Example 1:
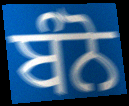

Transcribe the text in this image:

ਬੰਨੋ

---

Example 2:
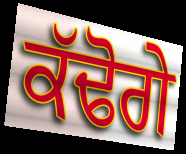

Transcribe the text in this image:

ਕੱਢੋਗੇ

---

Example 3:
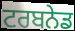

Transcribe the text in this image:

ਟਰਬਨੇਡ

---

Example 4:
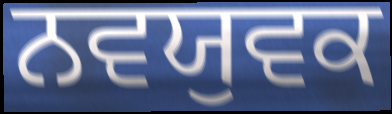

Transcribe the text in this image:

ਨਵਯੁਵਕ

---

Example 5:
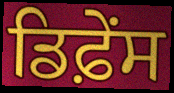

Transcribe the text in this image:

ਡਿਫ਼ੇਂਸ